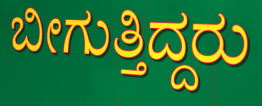
ಬೀಗುತ್ತಿದ್ದರು